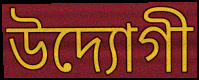
উদ্যোগী